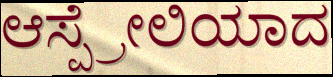
ಆಸ್ಪ್ರೇಲಿಯಾದ